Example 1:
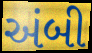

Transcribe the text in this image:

અંબી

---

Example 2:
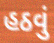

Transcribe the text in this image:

હઠવું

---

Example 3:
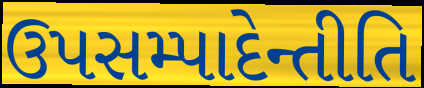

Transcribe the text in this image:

ઉપસમ્પાદેન્તીતિ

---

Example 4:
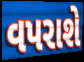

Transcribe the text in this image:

વપરાશે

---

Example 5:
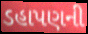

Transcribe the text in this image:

ડહાપણની